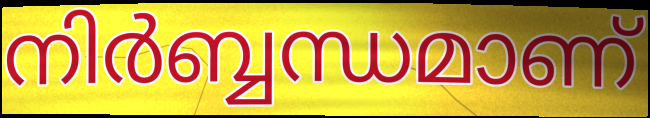
നിർബ്ബന്ധമാണ്